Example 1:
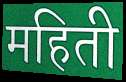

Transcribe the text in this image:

महिती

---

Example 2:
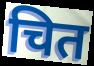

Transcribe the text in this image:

चित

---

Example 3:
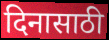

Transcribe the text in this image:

दिनासाठी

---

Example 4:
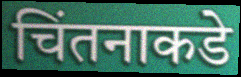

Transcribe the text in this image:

चिंतनाकडे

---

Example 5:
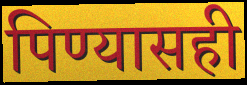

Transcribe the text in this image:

पिण्यासही